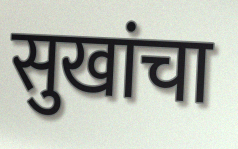
सुखांचा